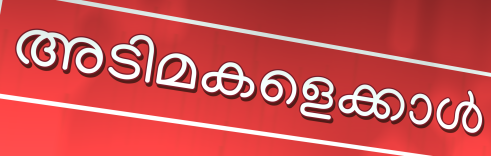
അടിമകളെക്കാൾ